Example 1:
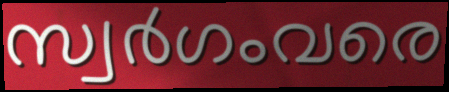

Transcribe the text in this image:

സ്വർഗംവരെ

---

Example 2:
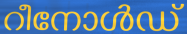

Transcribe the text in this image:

റീനോൾഡ്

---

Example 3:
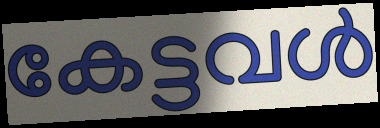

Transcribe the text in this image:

കേട്ടവൾ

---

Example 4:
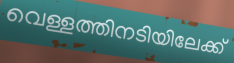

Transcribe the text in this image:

വെള്ളത്തിനടിയിലേക്ക്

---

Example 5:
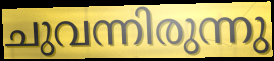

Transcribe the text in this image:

ചുവന്നിരുന്നു